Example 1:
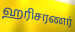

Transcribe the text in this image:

ஹரிசரணர்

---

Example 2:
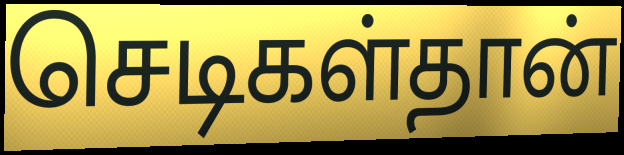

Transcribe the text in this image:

செடிகள்தான்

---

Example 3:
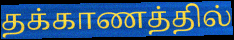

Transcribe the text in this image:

தக்காணத்தில்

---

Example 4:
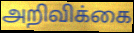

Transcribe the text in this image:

அறிவிக்கை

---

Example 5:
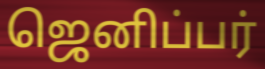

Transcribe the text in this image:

ஜெனிப்பர்